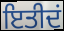
ਇਤੀਦਂ